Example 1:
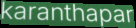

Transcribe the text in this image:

karanthapar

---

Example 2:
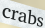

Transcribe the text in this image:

crabs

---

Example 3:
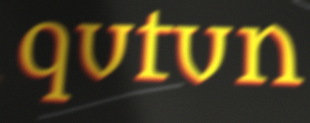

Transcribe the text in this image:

qutun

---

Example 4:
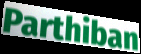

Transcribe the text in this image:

Parthiban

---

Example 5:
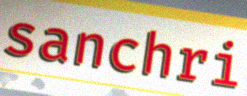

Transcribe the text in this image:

sanchri